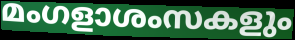
മംഗളാശംസകളും